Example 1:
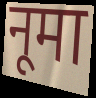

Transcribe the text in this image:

नूमा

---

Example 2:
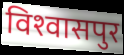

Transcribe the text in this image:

विश्वासपुर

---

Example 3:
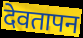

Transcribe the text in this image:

देवतापन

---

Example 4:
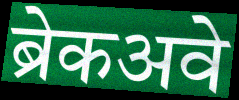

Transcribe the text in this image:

ब्रेकअवे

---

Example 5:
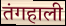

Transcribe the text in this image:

तंगहाली